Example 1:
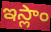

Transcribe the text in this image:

ఇస్లాం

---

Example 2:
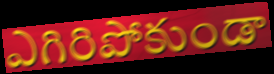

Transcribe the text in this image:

ఎగిరిపోకుండా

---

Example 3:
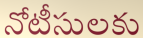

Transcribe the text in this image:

నోటీసులకు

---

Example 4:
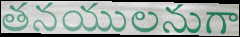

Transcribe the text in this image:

తనయులనుగా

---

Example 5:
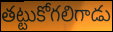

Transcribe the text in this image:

తట్టుకోగలిగాడు